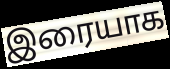
இரையாக